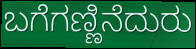
ಬಗೆಗಣ್ಣಿನೆದುರು